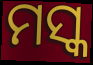
ମସ୍କ